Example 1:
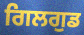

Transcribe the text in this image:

ਗਿਲਗੁਡ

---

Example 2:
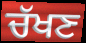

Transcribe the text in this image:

ਚੱਖਣ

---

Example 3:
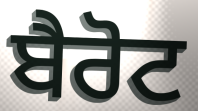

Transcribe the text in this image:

ਬੈਰੋਟ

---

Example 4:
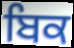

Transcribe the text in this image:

ਬਿਕ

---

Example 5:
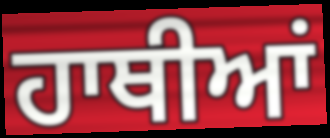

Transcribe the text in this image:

ਹਾਥੀਆਂ